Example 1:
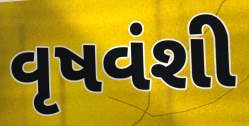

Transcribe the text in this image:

વૃષવંશી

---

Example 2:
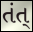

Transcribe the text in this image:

તંત્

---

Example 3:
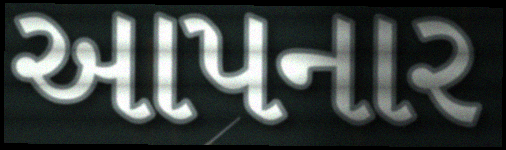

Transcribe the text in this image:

આપનાર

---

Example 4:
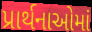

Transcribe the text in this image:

પ્રાર્થનાઓમાં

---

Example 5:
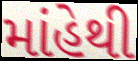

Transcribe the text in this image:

માંહેથી